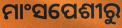
ମାଂସପେଶୀରୁ